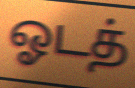
ஓடத்